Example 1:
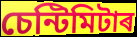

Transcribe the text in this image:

চেন্টিমিটাৰ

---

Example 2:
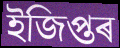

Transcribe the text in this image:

ইজিপ্তৰ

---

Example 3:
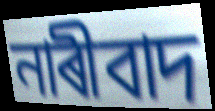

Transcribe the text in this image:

নাৰীবাদ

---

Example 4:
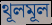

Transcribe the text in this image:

থূলমূল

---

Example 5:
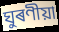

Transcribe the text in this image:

ঘুৰণীয়া